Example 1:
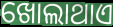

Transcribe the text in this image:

ଖୋଲାଥାଏ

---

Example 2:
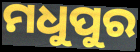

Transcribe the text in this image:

ମଧୁପୁର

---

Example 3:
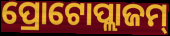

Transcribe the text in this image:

ପ୍ରୋଟୋପ୍ଲାଜମ୍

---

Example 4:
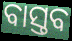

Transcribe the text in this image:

ବାସ୍ତବ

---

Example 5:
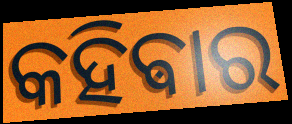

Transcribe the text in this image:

କହିଵାର